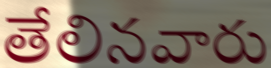
తేలినవారు